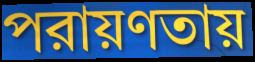
পরায়ণতায়